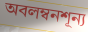
অবলম্বনশূন্য